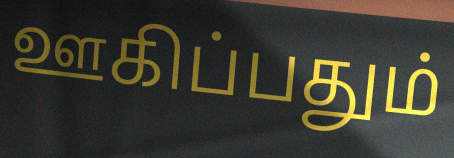
ஊகிப்பதும்